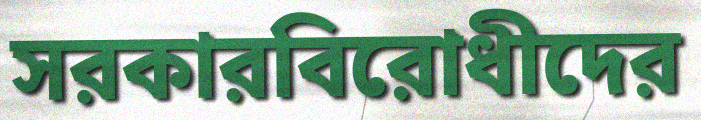
সরকারবিরোধীদের